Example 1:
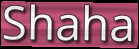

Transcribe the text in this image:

Shaha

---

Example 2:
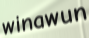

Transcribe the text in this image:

winawun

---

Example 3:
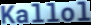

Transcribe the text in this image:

Kallol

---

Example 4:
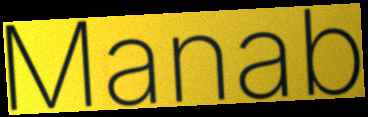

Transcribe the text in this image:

Manab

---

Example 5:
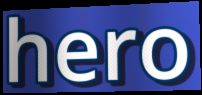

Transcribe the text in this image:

hero